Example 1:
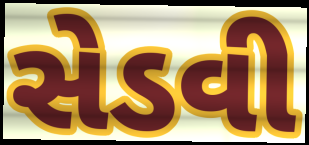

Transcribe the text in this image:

સેડવી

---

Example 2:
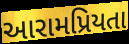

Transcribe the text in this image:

આરામપ્રિયતા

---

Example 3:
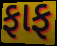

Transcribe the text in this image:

ફાફ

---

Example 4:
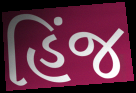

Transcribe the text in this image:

હિંજ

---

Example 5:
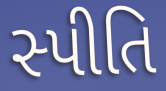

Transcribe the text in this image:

સ્પીતિ